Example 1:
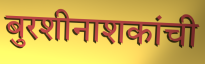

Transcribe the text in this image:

बुरशीनाशकांची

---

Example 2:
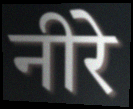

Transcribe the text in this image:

नीरे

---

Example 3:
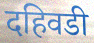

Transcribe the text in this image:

दहिवडी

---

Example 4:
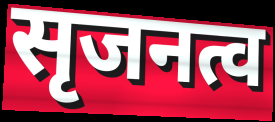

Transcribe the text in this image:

सृजनत्व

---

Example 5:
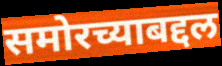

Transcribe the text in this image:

समोरच्याबद्दल